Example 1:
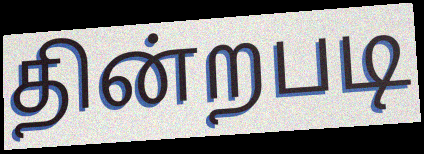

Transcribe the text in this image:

தின்றபடி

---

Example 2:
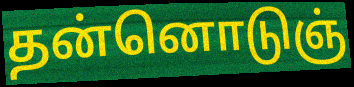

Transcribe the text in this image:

தன்னொடுஞ்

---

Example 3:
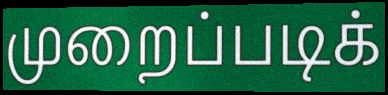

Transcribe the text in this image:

முறைப்படிக்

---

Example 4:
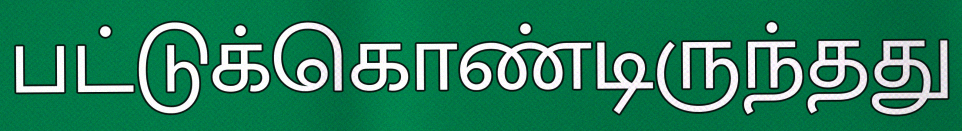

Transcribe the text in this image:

பட்டுக்கொண்டிருந்தது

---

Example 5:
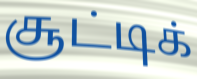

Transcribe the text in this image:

சூட்டிக்